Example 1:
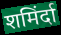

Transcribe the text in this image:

शमिंर्दा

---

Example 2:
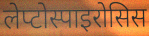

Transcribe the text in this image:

लेप्टोस्पाइरोसिस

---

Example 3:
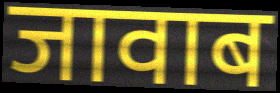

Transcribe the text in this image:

जावाब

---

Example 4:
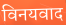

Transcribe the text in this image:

विनयवाद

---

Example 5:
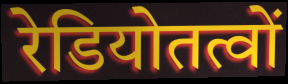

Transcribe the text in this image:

रेडियोतत्वों